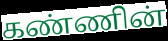
கண்ணின்